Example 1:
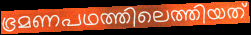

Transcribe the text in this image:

ഭ്രമണപഥത്തിലെത്തിയത്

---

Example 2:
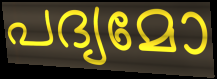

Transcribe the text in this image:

പദ്യമോ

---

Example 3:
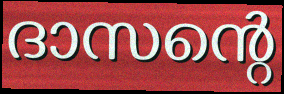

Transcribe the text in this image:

ദാസന്റെ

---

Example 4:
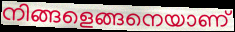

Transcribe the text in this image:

നിങ്ങളെങ്ങനെയാണ്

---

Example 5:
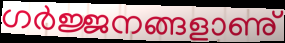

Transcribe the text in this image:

ഗർജ്ജനങ്ങളാണു്